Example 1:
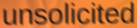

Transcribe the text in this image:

unsolicited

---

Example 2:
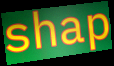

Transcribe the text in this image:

shap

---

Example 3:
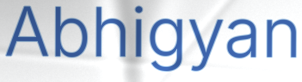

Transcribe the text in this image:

Abhigyan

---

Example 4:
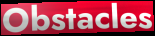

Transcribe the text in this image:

Obstacles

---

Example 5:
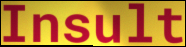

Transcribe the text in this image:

Insult